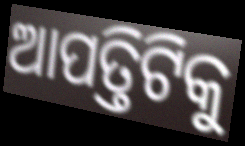
ଆପତ୍ତିଟିକୁ